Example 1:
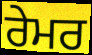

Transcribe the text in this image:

ਰੇਮਰ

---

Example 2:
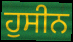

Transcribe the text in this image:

ਹੁਸੀਨ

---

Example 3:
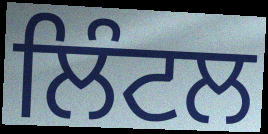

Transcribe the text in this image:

ਲਿੰਟਲ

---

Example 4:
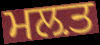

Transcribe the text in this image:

ਮਲ਼ਤ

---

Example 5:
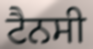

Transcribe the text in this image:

ਟੈਨਸੀ